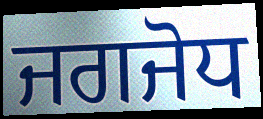
ਜਗਜੋਧ